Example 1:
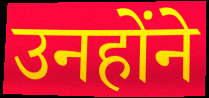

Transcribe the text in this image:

उनहोंने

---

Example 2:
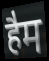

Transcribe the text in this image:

हैम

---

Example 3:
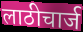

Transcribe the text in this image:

लाठीचार्ज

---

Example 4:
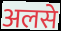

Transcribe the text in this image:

अलसे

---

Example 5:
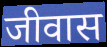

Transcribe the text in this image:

जीवास